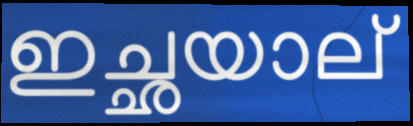
ഇച്ഛയാല്